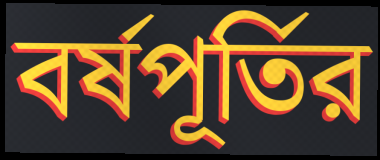
বর্ষপূর্তির